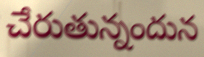
చేరుతున్నందున